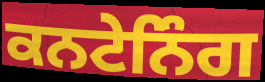
ਕਨਟੇਨਿੰਗ